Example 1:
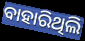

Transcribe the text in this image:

ବାହାରିଥିଲି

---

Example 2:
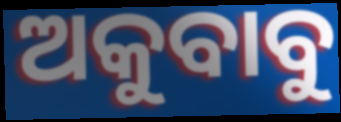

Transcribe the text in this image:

ଅକୁବାବୁ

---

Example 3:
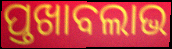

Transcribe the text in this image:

ପ୍ତଖାବଲାଭ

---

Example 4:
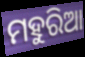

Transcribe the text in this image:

ମହୁରିଆ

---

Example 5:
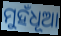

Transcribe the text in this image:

ମୁହଁଧୂଆ